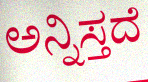
ಅನ್ನಿಸ್ತದೆ